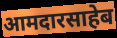
आमदारसाहेब